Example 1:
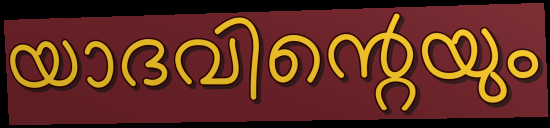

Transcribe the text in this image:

യാദവിന്റെയും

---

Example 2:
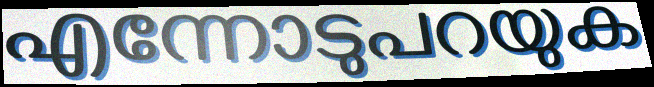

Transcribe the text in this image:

എന്നോടുപറയുക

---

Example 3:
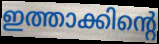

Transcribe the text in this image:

ഇത്താക്കിന്റെ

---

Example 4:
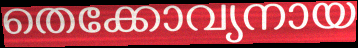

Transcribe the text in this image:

തെക്കോവ്യനായ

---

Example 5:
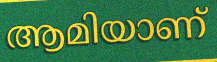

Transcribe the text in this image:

ആമിയാണ്